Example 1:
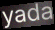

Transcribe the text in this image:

yada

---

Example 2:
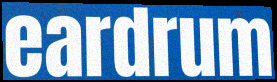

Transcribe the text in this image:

eardrum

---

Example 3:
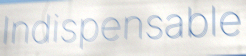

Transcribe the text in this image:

Indispensable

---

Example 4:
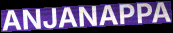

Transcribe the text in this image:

ANJANAPPA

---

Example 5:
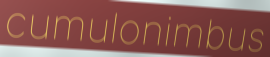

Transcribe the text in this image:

cumulonimbus